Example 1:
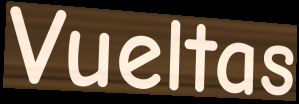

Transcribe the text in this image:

Vueltas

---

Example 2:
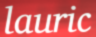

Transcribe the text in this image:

lauric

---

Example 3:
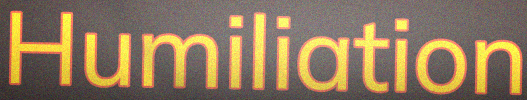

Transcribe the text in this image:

Humiliation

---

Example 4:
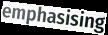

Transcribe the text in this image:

emphasising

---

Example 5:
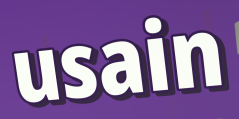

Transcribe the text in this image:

usain